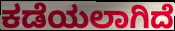
ಕಡೆಯಲಾಗಿದೆ